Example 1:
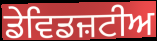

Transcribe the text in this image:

ਡੇਵਿਡਜ਼ਟੀਅ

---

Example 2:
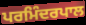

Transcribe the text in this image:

ਪਰਮਿੰਦਰਪਾਲ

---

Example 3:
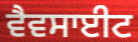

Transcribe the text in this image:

ਵੈਵਸਾਈਟ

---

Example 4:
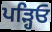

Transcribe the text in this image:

ਪੜ੍ਹਿਓ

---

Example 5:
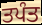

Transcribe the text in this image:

ਤਪੰਤ